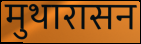
मुथारासन